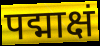
पद्माक्षं